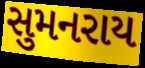
સુમનરાય